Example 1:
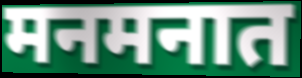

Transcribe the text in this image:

मनमनात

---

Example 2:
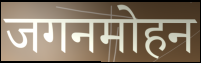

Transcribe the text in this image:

जगनमोहन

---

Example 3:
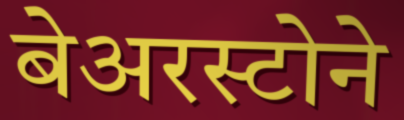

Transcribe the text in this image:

बेअरस्टोने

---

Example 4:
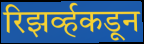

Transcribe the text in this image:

रिझर्व्हकडून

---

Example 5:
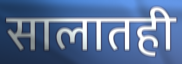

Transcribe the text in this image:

सालातही